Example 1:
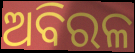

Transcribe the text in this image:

ଅବିରଳ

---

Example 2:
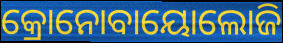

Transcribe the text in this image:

କ୍ରୋନୋବାୟୋଲୋଜି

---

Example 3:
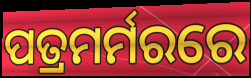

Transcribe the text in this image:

ପତ୍ରମର୍ମରରେ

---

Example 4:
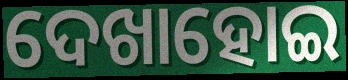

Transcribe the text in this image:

ଦେଖାହୋଇ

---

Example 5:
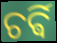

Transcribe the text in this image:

ଚର୍ଵି